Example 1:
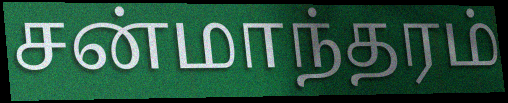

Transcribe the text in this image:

சன்மாந்தரம்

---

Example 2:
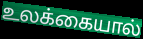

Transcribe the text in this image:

உலக்கையால்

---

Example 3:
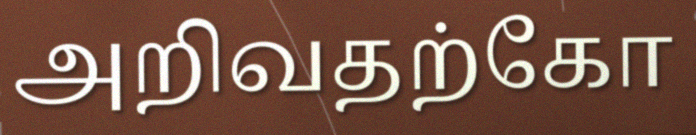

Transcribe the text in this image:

அறிவதற்கோ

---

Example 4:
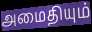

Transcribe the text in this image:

அமைதியும்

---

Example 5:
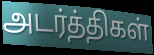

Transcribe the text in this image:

அடர்த்திகள்